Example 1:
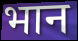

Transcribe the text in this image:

भान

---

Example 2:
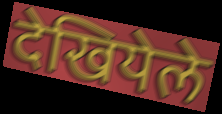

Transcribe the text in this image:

देखियेले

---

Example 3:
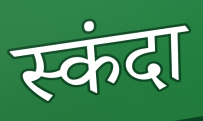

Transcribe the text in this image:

स्कंदा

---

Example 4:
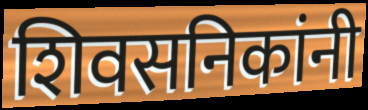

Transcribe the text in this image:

शिवसनिकांनी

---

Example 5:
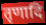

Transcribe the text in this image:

तृणादि